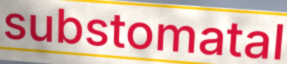
substomatal